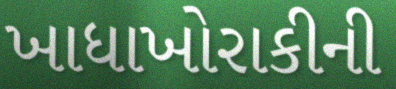
ખાધાખોરાકીની